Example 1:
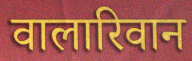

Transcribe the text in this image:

वालारिवान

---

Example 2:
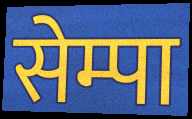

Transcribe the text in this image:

सेम्पा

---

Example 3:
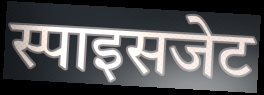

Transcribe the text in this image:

स्‍पाइसजेट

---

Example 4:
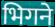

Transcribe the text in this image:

भिगने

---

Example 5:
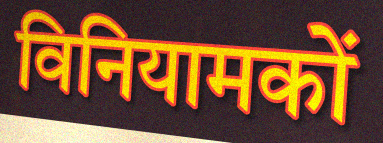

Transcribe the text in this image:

विनियामकों